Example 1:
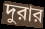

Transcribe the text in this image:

দুরার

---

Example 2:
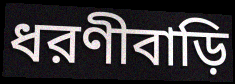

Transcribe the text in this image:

ধরণীবাড়ি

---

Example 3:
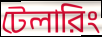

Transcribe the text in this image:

টেলারিং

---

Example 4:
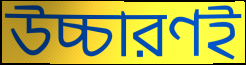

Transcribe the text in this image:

উচ্চারণই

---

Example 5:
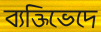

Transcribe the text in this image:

ব্যক্তিভেদে